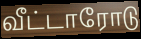
வீட்டாரோடு